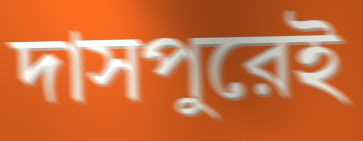
দাসপুরেই